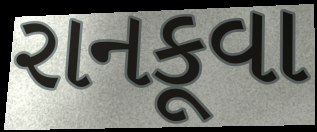
રાનકૂવા